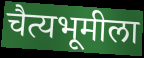
चैत्यभूमीला